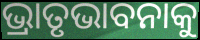
ଭ୍ରାତୃଭାବନାକୁ